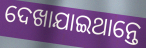
ଦେଖାଯାଇଥାନ୍ତେ